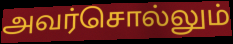
அவர்சொல்லும்